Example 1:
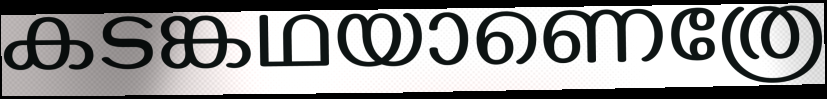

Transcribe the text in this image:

കടങ്കഥയാണെത്രേ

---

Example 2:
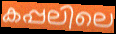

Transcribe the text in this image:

കപ്പലിലെ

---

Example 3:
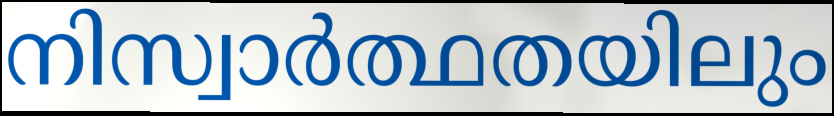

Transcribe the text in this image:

നിസ്വാർത്ഥതയിലും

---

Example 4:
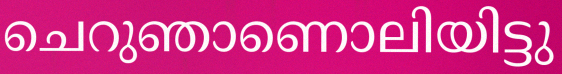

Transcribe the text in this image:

ചെറുഞാണൊലിയിട്ടു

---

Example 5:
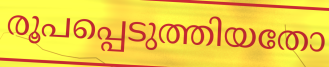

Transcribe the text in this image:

രൂപപ്പെടുത്തിയതോ